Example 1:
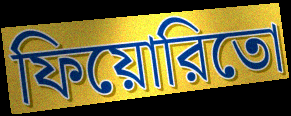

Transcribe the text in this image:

ফিয়োরিতো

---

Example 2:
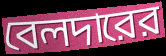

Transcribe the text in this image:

বেলদারের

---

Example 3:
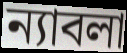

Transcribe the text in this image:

ন্যাবলা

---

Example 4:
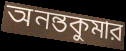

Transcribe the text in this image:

অনন্তকুমার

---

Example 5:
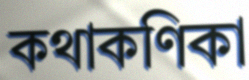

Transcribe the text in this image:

কথাকণিকা